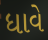
ધાવે